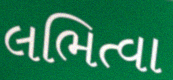
લભિત્વા